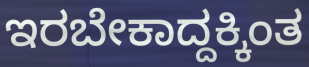
ಇರಬೇಕಾದ್ದಕ್ಕಿಂತ